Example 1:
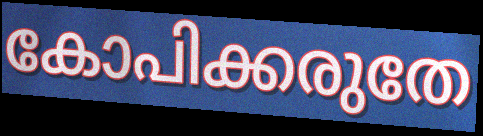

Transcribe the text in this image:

കോപിക്കരുതേ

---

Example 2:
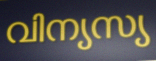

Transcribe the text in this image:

വിന്യസ്യ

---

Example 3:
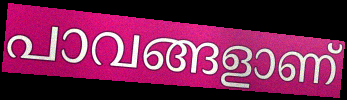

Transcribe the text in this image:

പാവങ്ങളാണ്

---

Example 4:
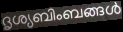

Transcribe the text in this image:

ദൃശ്യബിംബങ്ങൾ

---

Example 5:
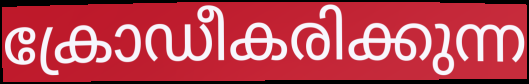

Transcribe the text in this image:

ക്രോഡീകരിക്കുന്ന